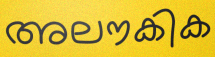
അലൗകിക